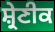
ਸ਼੍ਰੇਣੀਕ